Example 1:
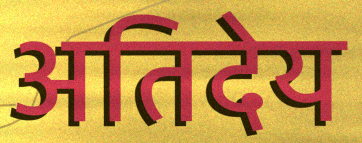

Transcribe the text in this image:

अतिदेय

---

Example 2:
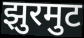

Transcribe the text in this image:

झुरमुट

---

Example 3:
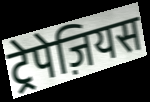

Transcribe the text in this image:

ट्रेपेज़ियस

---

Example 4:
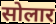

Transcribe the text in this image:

सोलार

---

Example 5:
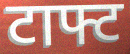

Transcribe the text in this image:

टाफ्ट